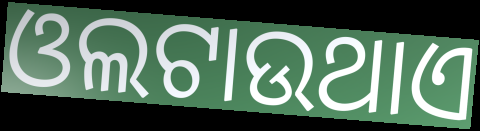
ଓଲଟାଉଥାଏ